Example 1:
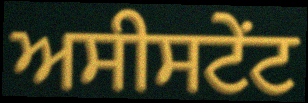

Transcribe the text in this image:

ਅਸੀਸਟੇਂਟ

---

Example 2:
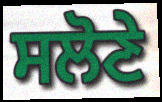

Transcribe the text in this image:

ਸਲੋਣੇ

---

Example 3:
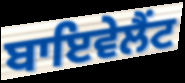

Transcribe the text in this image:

ਬਾਇਵੇਲੈਂਟ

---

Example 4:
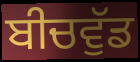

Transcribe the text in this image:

ਬੀਚਵੁੱਡ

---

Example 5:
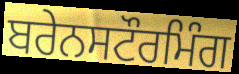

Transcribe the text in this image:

ਬਰੇਨਸਟੌਰਮਿੰਗ